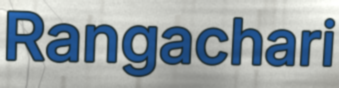
Rangachari